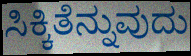
ಸಿಕ್ಕಿತೆನ್ನುವುದು